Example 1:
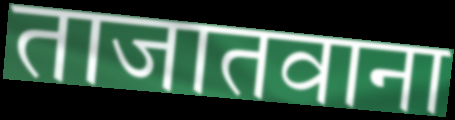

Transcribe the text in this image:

ताजातवाना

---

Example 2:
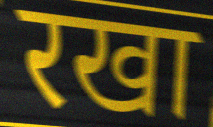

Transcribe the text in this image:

रखा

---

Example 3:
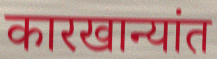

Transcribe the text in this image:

कारखान्यांत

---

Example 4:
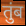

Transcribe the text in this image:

तुंब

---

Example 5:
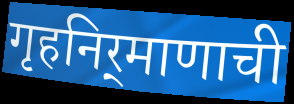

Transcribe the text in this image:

गृहनिर्माणाची